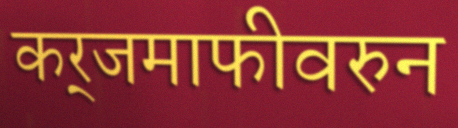
कर्जमाफीवरुन